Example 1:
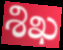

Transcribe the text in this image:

శిఖ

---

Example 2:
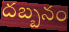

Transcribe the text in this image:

దబ్బనం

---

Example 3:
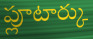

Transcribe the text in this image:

ప్లూటార్కు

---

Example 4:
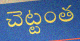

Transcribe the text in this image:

చెట్టంత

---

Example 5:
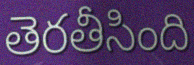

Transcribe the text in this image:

తెరతీసింది